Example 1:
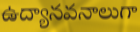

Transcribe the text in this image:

ఉద్యానవనాలుగా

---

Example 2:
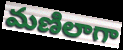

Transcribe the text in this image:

మణిలాగా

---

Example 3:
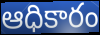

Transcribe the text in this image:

ఆధికారం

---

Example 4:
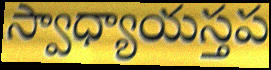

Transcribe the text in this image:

స్వాధ్యాయస్తప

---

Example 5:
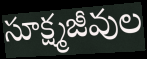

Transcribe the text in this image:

సూక్ష్మజీవుల